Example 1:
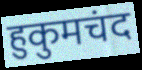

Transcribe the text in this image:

हुकुमचंद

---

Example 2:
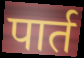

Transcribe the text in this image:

पार्त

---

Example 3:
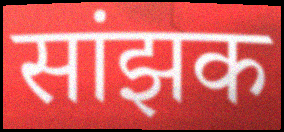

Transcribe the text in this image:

सांझक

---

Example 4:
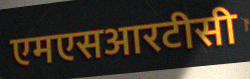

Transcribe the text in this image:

एमएसआरटीसी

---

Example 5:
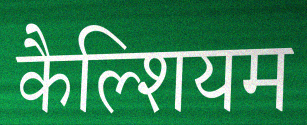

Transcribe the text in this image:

कैल्शियम